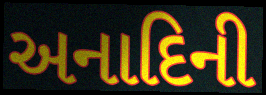
અનાદિની